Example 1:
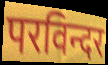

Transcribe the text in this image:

परविन्दर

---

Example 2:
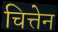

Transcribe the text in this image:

चित्तेन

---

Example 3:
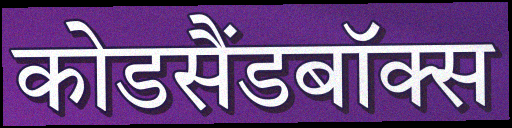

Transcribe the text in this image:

कोडसैंडबॉक्स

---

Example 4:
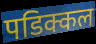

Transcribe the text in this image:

पडिक्कल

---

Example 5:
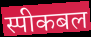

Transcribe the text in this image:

स्पीकबल